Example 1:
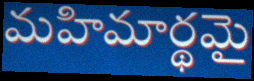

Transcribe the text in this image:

మహిమార్థమై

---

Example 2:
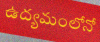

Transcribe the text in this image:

ఉద్యమంలోనో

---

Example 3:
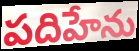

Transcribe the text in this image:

పదిహేను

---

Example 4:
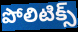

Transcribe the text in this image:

పోలిటిక్స్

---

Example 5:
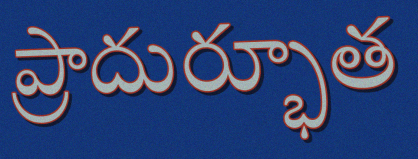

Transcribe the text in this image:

ప్రాదుర్భూత